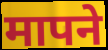
मापने